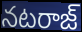
నటరాజ్